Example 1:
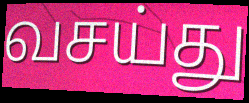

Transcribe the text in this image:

வசய்து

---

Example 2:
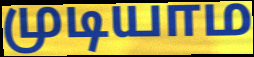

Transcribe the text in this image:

முடியாம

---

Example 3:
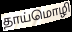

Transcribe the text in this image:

தாய்மொழி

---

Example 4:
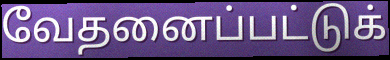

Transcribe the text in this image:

வேதனைப்பட்டுக்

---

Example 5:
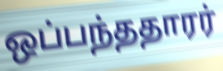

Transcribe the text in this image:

ஒப்பந்ததாரர்